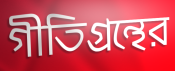
গীতিগ্রন্থের